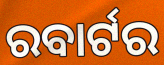
ରବାର୍ଟର